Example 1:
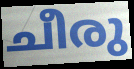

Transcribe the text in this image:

ചീരു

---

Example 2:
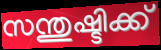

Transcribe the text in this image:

സന്തുഷ്ടിക്ക്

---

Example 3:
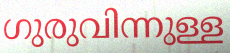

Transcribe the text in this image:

ഗുരുവിന്നുള്ള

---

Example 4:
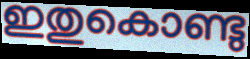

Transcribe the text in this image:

ഇതുകൊണ്ടു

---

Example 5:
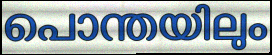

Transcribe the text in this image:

പൊന്തയിലും